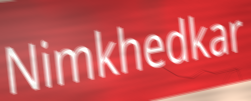
Nimkhedkar